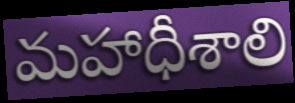
మహాధీశాలి